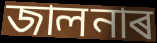
জালনাৰ